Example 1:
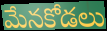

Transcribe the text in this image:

మేనకోడలు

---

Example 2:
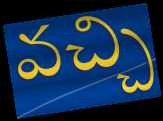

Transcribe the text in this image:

వచ్చి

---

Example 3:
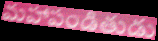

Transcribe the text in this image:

మహాపండితుడు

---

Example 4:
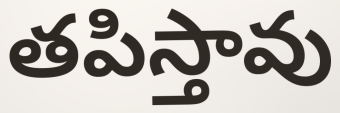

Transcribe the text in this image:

తపిస్తావు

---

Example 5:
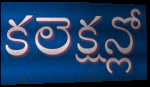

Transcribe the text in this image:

కలెక్షన్లో